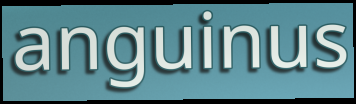
anguinus